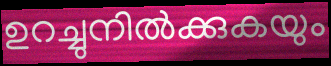
ഉറച്ചുനിൽക്കുകയും